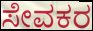
ಸೇವಕರ